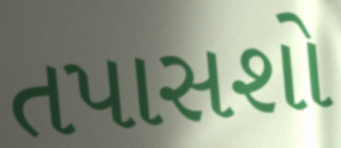
તપાસશો